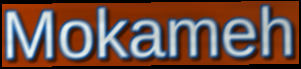
Mokameh